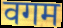
वगम